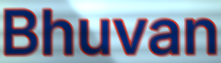
Bhuvan